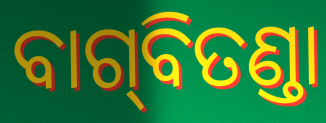
ବାଗ୍‍ବିତଣ୍ଡା